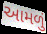
આમળું